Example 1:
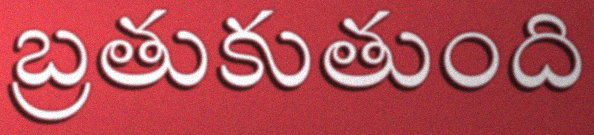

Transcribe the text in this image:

బ్రతుకుతుంది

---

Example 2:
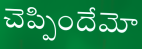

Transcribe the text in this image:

చెప్పిందేమో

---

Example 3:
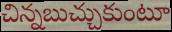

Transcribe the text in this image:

చిన్నబుచ్చుకుంటూ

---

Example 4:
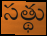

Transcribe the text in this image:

సత్థు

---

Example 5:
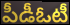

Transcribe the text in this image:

పీడీఓటీ